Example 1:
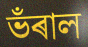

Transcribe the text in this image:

ভঁৰাল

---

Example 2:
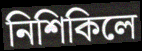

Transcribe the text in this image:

নিশিকিলে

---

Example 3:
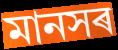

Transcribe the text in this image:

মানসৰ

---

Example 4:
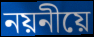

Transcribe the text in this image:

নয়নীয়ে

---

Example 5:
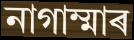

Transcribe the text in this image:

নাগাম্মাৰ